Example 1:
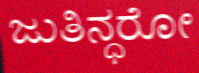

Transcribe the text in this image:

ಜುತಿನ್ಧರೋ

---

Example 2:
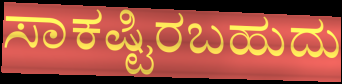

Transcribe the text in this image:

ಸಾಕಷ್ಟಿರಬಹುದು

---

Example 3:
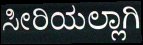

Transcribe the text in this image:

ಸೀರಿಯಲ್ಲಾಗಿ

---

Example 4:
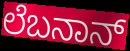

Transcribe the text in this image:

ಲೆಬನಾನ್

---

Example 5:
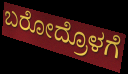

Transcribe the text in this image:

ಬರೋದ್ರೊಳಗೆ